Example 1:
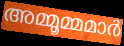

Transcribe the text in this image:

അമ്മൂമ്മമാർ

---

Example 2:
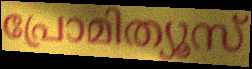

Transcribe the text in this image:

പ്രോമിത്യൂസ്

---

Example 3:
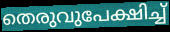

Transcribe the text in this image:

തെരുവുപേക്ഷിച്ച്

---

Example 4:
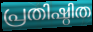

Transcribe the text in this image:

പ്രതിഷ്ഠിത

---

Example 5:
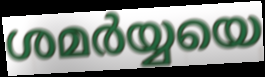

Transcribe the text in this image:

ശമർയ്യയെ